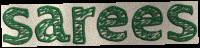
sarees